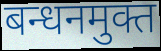
बन्धनमुक्त